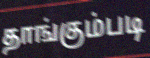
தாங்கும்படி